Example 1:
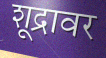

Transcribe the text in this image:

शूद्रावर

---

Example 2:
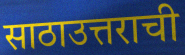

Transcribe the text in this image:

साठाउत्तराची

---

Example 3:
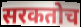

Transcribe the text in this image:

सरकतोच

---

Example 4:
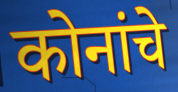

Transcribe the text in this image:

कोनांचे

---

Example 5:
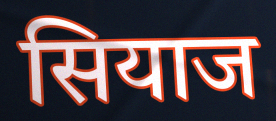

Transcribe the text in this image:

सियाज